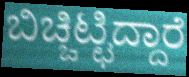
ಬಿಚ್ಚಿಟ್ಟಿದ್ದಾರೆ